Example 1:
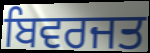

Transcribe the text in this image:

ਬਿਵਰਜਤ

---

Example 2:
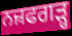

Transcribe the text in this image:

ਨਜ਼ਫਗੜ੍ਹ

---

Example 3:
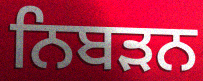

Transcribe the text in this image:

ਨਿਬੜਨ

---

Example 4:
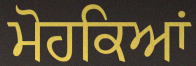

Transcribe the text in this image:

ਮੋਹਕਿਆਂ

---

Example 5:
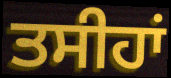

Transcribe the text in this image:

ਤਸੀਹਾਂ